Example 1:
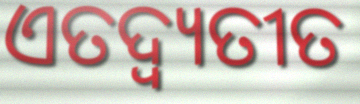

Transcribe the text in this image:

ଏତଦ୍ବ୍ୟତୀତ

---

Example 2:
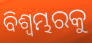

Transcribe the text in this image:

ବିଶ୍ୱମ୍ଭରକୁ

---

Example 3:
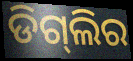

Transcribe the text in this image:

ଡିଗ୍‌ଲିର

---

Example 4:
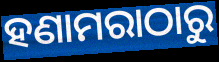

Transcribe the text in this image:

ହଣାମରାଠାରୁ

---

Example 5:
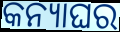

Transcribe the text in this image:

କନ୍ୟାଘର